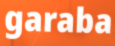
garaba